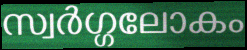
സ്വർഗ്ഗലോകം